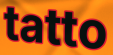
tatto